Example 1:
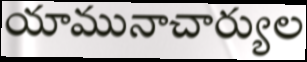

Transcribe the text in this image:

యామునాచార్యుల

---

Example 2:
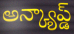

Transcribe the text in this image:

అన్క్యాప్డ్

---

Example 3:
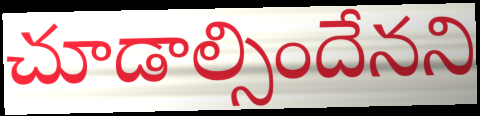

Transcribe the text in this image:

చూడాల్సిందేనని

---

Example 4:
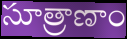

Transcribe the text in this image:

సూత్రాణాం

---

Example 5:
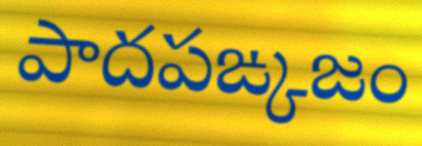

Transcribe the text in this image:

పాదపఙ్కజం